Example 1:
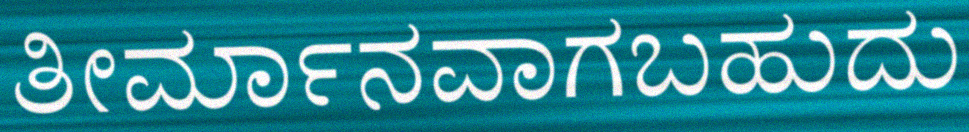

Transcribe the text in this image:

ತೀರ್ಮಾನವಾಗಬಹುದು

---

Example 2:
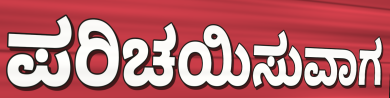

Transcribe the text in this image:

ಪರಿಚಯಿಸುವಾಗ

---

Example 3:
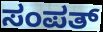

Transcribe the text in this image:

ಸಂಪತ್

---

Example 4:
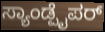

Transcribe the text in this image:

ಸ್ಯಾಂಡ್ಪೈಪರ್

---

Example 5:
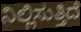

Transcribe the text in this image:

ನಿಲ್ಲಿಸುತ್ತಿದೆ